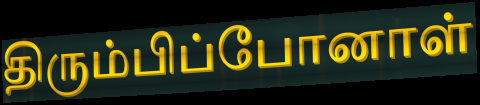
திரும்பிப்போனாள்